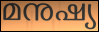
മനുഷ്യ